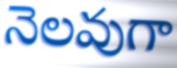
నెలవుగా